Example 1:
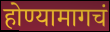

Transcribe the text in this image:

होण्यामागचं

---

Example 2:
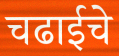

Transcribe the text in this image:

चढाईचे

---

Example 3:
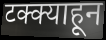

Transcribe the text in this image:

टक्क्याहून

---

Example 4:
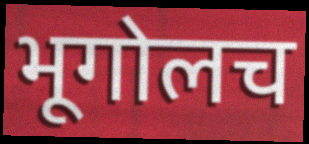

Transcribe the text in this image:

भूगोलच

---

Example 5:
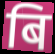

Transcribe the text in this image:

बि